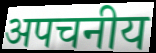
अपचनीय